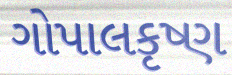
ગોપાલકૃષ્ણ